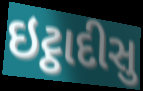
ઇટ્ઠાદીસુ